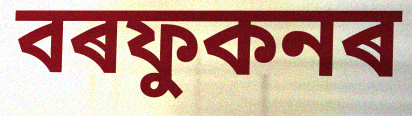
বৰফুকনৰ